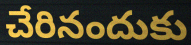
చేరినందుకు